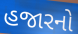
હજારનો